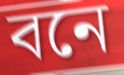
বনে